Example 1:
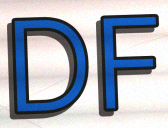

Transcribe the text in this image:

DF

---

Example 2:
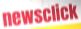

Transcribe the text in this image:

newsclick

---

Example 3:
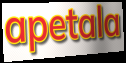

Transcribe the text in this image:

apetala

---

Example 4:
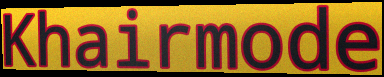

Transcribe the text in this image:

Khairmode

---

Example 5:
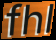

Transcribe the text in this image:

fhl